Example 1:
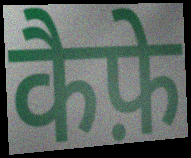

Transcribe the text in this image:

कैफ़े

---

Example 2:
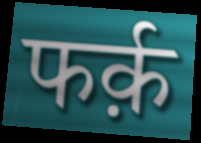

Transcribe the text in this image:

फर्क़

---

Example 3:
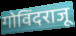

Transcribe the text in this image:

गोविंदराजू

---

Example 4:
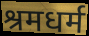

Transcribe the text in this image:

श्रमधर्म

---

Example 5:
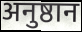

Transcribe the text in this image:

अनुष्ठान